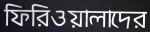
ফিরিওয়ালাদের